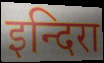
इन्दिरा